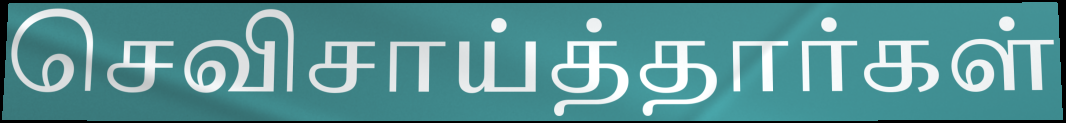
செவிசாய்த்தார்கள்